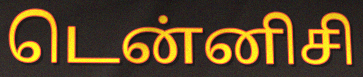
டென்னிசி